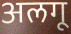
अलगू